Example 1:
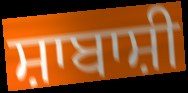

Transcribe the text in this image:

ਸ਼ਾਬਾਸ਼ੀ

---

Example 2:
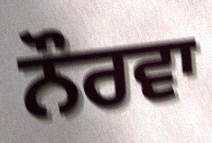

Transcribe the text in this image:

ਨੌਰਵਾ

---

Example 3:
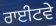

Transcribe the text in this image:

ਰਾਈਟਵੇ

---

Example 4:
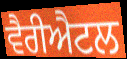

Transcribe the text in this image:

ਵੈਰੀਐਟਲ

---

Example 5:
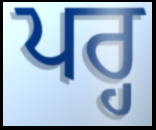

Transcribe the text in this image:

ਪਰ੍ਹ